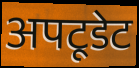
अपटूडेट